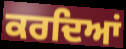
ਕਰਦਿਆਂ